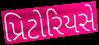
પ્રિટોરિયસે